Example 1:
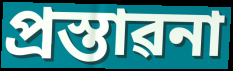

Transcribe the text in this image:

প্ৰস্তাৱনা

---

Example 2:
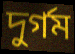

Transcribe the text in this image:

দুৰ্গম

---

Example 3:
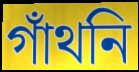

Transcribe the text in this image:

গাঁথনি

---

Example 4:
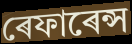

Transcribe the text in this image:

ৰেফাৰেন্স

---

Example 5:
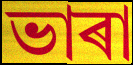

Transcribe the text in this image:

ভাৰা